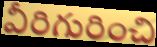
వీరిగురించి